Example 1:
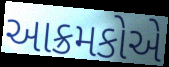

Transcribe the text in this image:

આક્રમકોએ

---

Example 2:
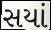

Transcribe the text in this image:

સયાં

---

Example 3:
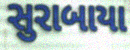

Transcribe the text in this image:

સુરાબાયા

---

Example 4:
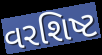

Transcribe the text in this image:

વરશિષ્ટ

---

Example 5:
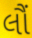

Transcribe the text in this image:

લૌં